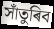
সাঁতুৰিব